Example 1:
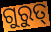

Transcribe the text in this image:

ଗୁରୁତ୍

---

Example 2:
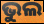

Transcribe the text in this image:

ଭୁଲ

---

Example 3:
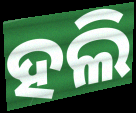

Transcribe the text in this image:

ହଲି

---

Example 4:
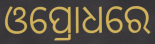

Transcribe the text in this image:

ଓପ୍ରୋଧରେ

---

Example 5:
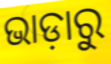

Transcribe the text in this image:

ଭାଡ଼ାରୁ